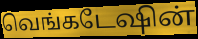
வெங்கடேஷின்